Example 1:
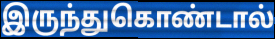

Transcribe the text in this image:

இருந்துகொண்டால்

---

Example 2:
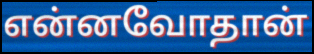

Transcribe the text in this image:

என்னவோதான்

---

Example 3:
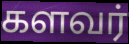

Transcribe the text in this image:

களவர்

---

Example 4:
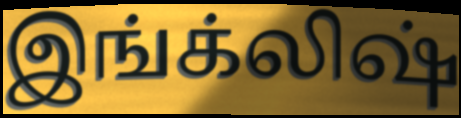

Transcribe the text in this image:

இங்க்லிஷ்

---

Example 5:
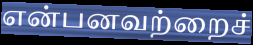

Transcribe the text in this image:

என்பனவற்றைச்